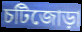
চটিজোড়া